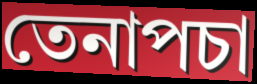
তেনাপচা